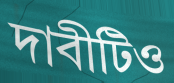
দাবীটিও